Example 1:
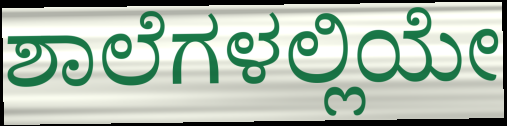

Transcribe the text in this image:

ಶಾಲೆಗಳಲ್ಲಿಯೇ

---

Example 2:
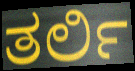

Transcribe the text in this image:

ತರ್ಲಿ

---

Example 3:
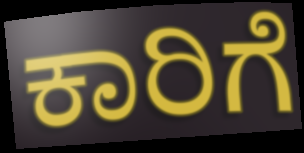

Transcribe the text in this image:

ಕಾರಿಗೆ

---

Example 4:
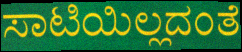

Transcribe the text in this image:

ಸಾಟಿಯಿಲ್ಲದಂತೆ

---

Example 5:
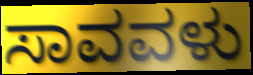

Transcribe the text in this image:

ಸಾವವಳು